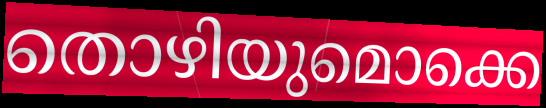
തൊഴിയുമൊക്കെ